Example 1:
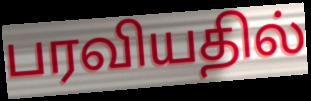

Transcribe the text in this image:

பரவியதில்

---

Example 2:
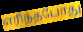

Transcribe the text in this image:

எரிந்தபோது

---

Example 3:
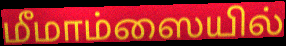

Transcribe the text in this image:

மீமாம்ஸையில்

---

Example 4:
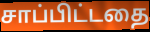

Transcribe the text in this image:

சாப்பிட்டதை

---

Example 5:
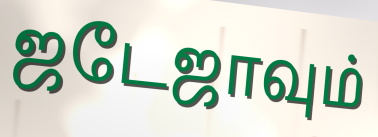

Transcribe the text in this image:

ஜடேஜாவும்